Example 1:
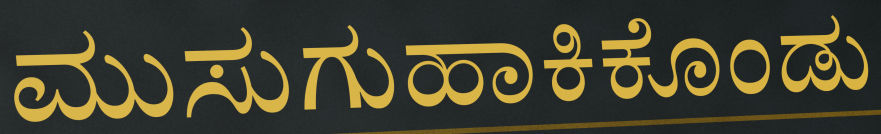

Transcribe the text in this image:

ಮುಸುಗುಹಾಕಿಕೊಂಡು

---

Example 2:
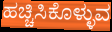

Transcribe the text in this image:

ಹಚ್ಚಿಸಿಕೊಳ್ಳುವ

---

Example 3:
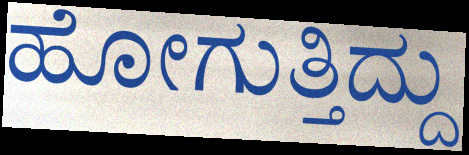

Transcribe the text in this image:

ಹೋಗುತ್ತಿದ್ದು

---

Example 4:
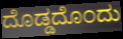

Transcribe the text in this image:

ದೊಡ್ಡದೊಂದು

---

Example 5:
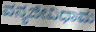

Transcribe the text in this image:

ವನ್ಯಜೀವಿಧಾಮ